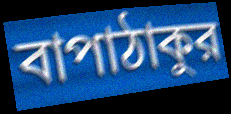
বাপাঠাকুর